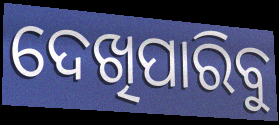
ଦେଖିପାରିବୁ